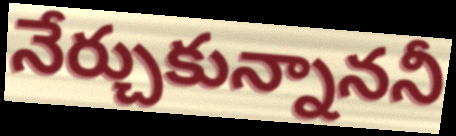
నేర్చుకున్నాననీ